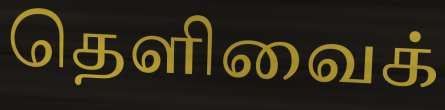
தெளிவைக்